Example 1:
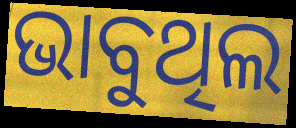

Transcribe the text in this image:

ଭାବୁଥିଲ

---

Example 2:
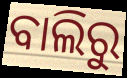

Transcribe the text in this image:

ବାଲିରୁ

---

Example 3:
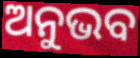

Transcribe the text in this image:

ଅନୁଭବ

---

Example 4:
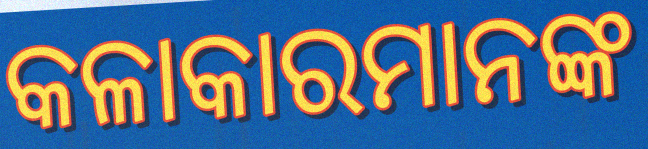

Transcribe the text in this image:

କଳାକାରମାନଙ୍କ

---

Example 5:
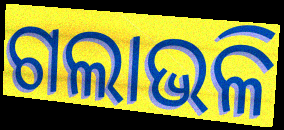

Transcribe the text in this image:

ଗଲାଭଳି